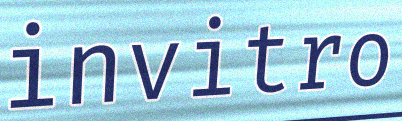
invitro